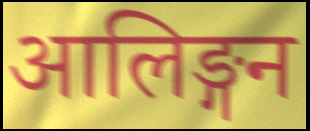
आलिङ्गन